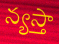
న్యస్తా